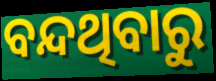
ବନ୍ଦଥିବାରୁ